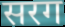
सरग